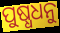
ପୁଷ୍ଧଧନୁ